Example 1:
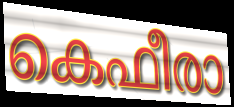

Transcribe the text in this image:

കെഫീരാ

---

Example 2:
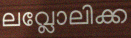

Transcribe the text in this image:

ലവ്ലോലിക്ക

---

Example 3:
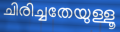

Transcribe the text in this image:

ചിരിച്ചതേയുള്ളൂ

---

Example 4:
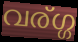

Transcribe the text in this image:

വര്ഗ്ഗ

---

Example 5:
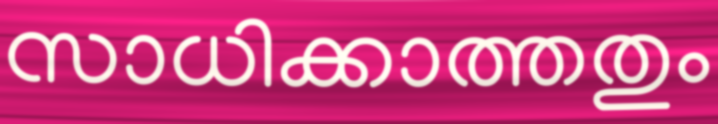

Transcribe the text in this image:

സാധിക്കാത്തതും